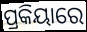
ପ୍ରକିୟାରେ